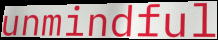
unmindful